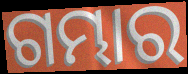
ଗମ୍ଭାର